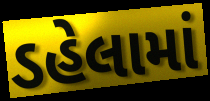
ડહેલામાં